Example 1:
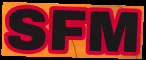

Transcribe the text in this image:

SFM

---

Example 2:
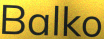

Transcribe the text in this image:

Balko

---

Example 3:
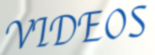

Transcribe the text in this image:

VIDEOS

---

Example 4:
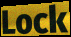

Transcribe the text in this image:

Lock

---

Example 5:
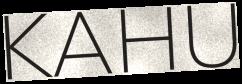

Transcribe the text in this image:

KAHU